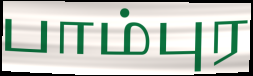
பாம்புர